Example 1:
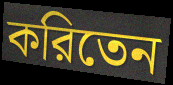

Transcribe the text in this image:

করিতেন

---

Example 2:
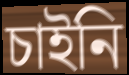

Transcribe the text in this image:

চাইনি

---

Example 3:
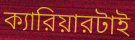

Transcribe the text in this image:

ক্যারিয়ারটাই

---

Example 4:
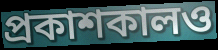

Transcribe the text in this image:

প্রকাশকালও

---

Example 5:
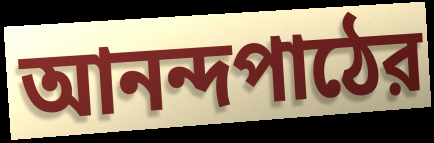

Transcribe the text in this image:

আনন্দপাঠের